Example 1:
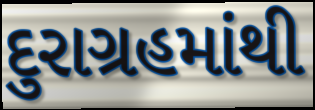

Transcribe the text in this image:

દુરાગ્રહમાંથી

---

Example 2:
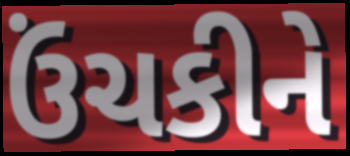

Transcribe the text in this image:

ઉંચકીને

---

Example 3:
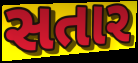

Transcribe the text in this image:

સતાર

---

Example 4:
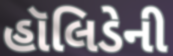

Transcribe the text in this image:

હૉલિડેની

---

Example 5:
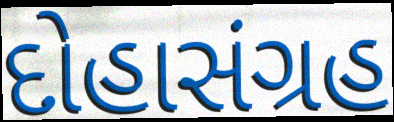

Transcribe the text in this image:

દોહાસંગ્રહ